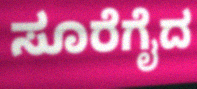
ಸೂರೆಗೈದ